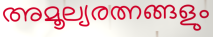
അമൂല്യരത്നങ്ങളും